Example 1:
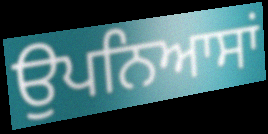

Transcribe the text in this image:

ਉਪਨਿਆਸਾਂ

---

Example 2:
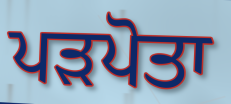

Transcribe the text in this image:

ਪੜਪੋਤਾ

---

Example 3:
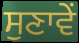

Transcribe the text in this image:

ਸੁਣਾਵੇਂ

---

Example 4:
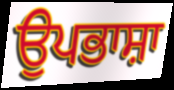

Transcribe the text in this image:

ਉਪਭਾਸ਼ਾ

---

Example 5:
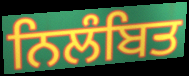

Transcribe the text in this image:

ਨਿਲੰਬਿਤ